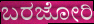
ಬರಜೋರಿ